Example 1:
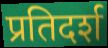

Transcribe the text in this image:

प्रतिदर्श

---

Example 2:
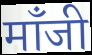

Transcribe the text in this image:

मॉंजी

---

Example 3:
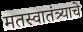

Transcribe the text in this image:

मतस्वातंत्र्याचे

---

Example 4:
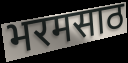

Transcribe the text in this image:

भरमसाठ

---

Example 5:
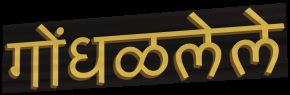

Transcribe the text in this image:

गोंधळलेले